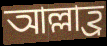
আল্লাহ্র